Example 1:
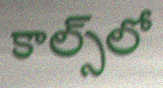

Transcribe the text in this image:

కాల్స్‌లో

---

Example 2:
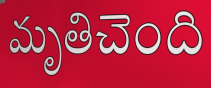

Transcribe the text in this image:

మృతిచెంది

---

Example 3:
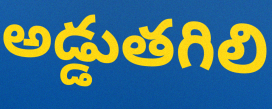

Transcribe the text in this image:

అడ్డుతగిలి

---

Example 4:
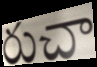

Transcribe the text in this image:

రుచా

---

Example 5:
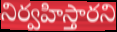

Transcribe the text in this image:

నిర్వహిస్తారని